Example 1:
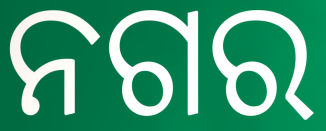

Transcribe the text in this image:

ନଗର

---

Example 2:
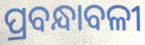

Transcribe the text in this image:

ପ୍ରବନ୍ଧାବଳୀ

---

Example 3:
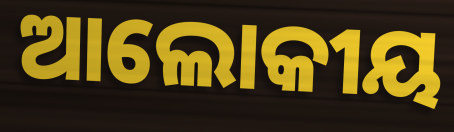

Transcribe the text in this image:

ଆଲୋକୀୟ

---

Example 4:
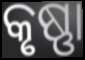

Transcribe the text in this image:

କୃଷ୍ଣା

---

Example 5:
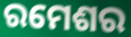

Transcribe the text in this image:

ରମେଶର